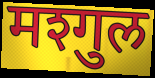
मश्गुल